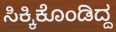
ಸಿಕ್ಕಿಕೊಂಡಿದ್ದ